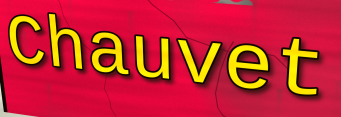
Chauvet